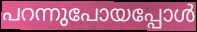
പറന്നുപോയപ്പോൾ